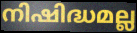
നിഷിദ്ധമല്ല